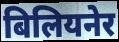
बिलियनेर